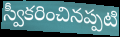
స్వీకరించినప్పటి